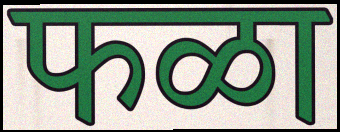
फळा